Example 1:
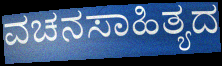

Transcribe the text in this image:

ವಚನಸಾಹಿತ್ಯದ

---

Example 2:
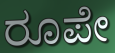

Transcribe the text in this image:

ರೂಪೇ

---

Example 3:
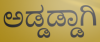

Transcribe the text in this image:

ಅಡ್ಡಡ್ಡಾಗಿ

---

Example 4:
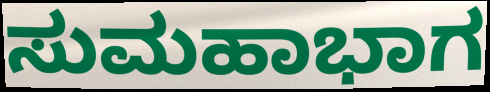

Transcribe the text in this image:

ಸುಮಹಾಭಾಗ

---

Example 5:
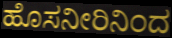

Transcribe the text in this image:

ಹೊಸನೀರಿನಿಂದ